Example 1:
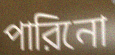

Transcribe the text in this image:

পারিনো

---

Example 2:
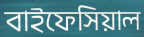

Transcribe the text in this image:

বাইফেসিয়াল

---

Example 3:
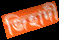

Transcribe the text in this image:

জিহাদী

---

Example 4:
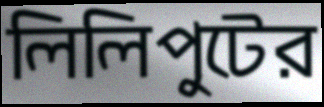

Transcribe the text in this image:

লিলিপুটের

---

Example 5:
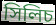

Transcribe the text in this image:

সিলিচ